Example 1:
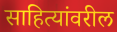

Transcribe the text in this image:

साहित्यांवरील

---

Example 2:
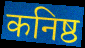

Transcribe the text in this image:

कनिष्ठ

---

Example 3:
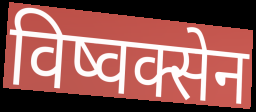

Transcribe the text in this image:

विष्वक्सेन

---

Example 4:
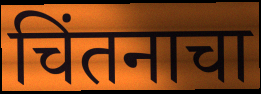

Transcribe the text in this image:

चिंतनाचा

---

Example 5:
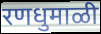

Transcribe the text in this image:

रणधुमाळी